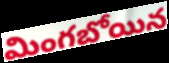
మింగబోయిన